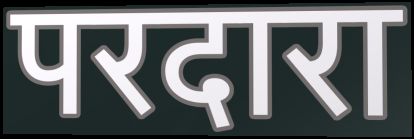
परदारा